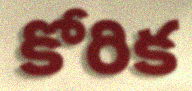
కోరిక